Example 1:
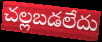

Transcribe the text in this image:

చల్లబడలేదు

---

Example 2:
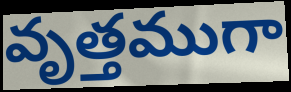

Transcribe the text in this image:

వృత్తముగా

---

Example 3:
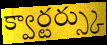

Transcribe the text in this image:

క్వార్టర్స్కు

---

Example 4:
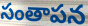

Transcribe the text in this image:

సంతాపన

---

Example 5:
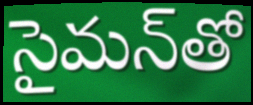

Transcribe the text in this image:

సైమన్‌తో